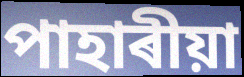
পাহাৰীয়া